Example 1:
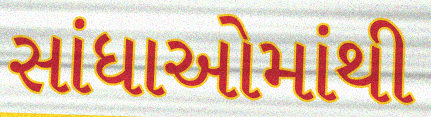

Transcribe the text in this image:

સાંધાઓમાંથી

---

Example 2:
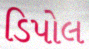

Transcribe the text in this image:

ડિપોલ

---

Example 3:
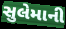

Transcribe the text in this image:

સુલેમાની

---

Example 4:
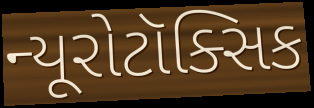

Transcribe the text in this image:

ન્યૂરોટૉક્સિક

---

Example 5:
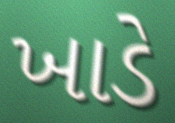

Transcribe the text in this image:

ખાડે